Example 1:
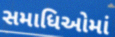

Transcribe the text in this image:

સમાધિઓમાં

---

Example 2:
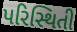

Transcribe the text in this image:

પરિસ્થિતી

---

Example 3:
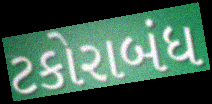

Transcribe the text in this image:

ટકોરાબંધ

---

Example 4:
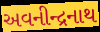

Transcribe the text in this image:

અવનીન્દ્રનાથ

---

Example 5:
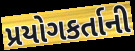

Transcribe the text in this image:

પ્રયોગકર્તાની